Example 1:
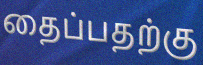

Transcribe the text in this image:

தைப்பதற்கு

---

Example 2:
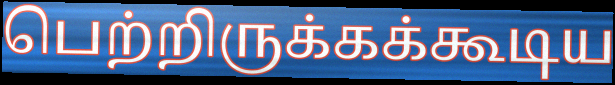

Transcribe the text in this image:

பெற்றிருக்கக்கூடிய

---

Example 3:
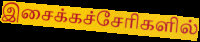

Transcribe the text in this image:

இசைக்கச்சேரிகளில்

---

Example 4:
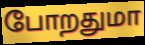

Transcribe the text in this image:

போறதுமா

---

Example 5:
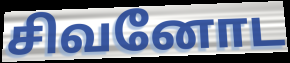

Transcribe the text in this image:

சிவனோட